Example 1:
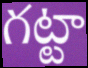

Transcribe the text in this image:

గట్టా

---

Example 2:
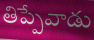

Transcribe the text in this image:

తిప్పేవాడు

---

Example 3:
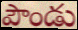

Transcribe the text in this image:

పౌండు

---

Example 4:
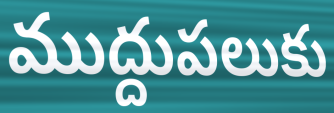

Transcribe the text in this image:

ముద్దుపలుకు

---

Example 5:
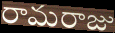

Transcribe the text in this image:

రామరాజు